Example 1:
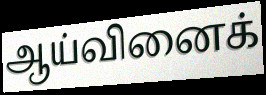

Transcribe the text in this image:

ஆய்வினைக்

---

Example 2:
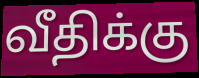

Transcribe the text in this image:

வீதிக்கு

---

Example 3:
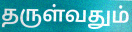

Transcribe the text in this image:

தருள்வதும்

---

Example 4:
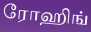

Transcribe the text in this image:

ரோஹிங்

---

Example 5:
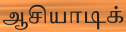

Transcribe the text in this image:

ஆசியாடிக்